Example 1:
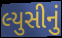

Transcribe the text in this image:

લ્યુસીનું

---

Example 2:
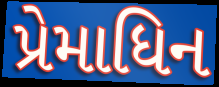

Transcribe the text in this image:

પ્રેમાધિન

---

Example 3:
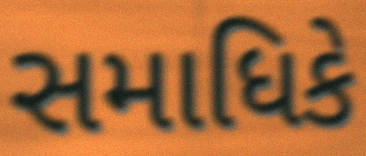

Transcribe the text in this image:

સમાધિકે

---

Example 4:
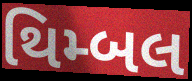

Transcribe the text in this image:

થિમ્બલ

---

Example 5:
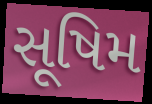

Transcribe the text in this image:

સૂષિમ